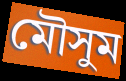
মৌসুম